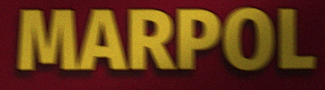
MARPOL